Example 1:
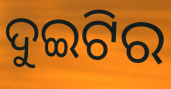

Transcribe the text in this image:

ଦୁଇଟିର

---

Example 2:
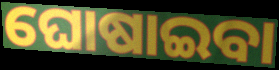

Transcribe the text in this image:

ଘୋଷାଇବା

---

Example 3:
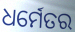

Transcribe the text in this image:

ଧର୍ମେତର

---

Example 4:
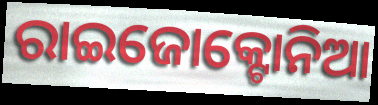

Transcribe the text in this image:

ରାଇଜୋକ୍ଟୋନିଆ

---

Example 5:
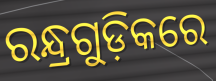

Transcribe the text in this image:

ରନ୍ଧ୍ରଗୁଡ଼ିକରେ